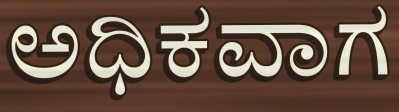
ಅಧಿಕವಾಗ